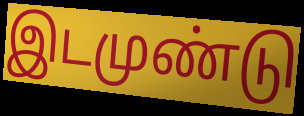
இடமுண்டு